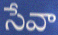
సేవా